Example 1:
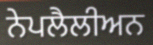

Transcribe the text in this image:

ਨੇਪਲੈਲੀਅਨ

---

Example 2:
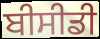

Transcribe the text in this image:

ਬੀਸੀਡੀ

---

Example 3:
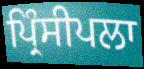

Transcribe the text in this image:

ਪ੍ਰਿੰਸੀਪਲਾ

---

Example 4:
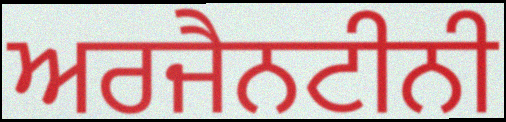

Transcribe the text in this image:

ਅਰਜੈਨਟੀਨੀ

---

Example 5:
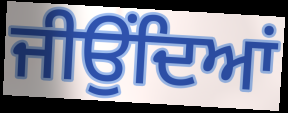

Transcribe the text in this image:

ਜੀਉਂਦਿਆਂ